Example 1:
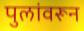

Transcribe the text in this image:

पुलांवरून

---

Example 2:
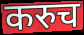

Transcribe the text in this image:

करुच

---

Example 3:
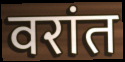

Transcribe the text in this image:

वरांत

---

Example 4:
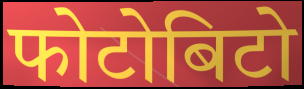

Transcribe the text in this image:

फोटोबिटो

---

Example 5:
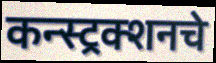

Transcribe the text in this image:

कन्स्ट्रक्शनचे